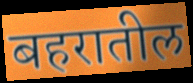
बहरातील